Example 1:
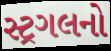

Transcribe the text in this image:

સ્ટ્રગલનો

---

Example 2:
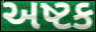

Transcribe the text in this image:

અષ્ટક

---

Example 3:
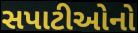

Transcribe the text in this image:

સપાટીઓનો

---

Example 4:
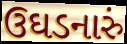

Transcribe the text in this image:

ઉઘડનારું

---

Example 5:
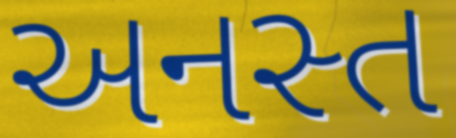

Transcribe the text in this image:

અનસ્ત